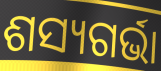
ଶସ୍ୟଗର୍ଭା